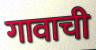
गावाची